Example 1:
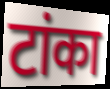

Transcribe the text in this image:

टांका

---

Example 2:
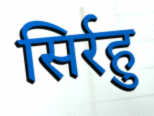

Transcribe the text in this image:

सिर्रहु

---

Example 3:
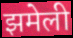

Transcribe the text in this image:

झमेली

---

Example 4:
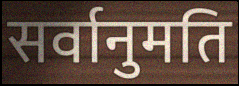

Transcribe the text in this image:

सर्वानुमति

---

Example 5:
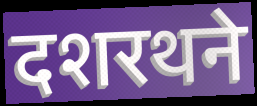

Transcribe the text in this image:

दशरथने